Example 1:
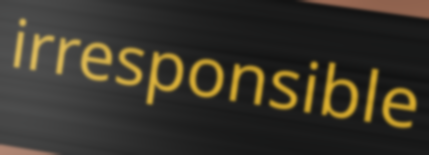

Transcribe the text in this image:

irresponsible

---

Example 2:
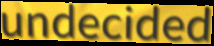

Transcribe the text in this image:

undecided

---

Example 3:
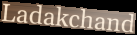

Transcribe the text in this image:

Ladakchand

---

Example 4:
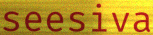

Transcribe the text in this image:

seesiva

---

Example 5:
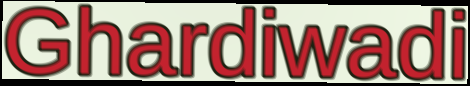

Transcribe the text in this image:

Ghardiwadi